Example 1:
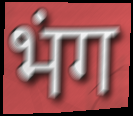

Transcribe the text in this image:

भंग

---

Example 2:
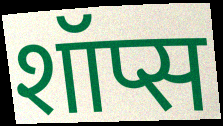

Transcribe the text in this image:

शॉप्स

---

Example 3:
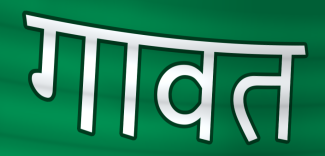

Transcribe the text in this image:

गावत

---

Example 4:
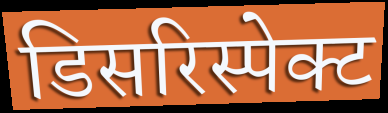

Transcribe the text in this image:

डिसरिस्पेक्ट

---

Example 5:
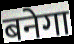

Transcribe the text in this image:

बनेगा